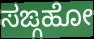
ಸಙ್ಗಹೋ